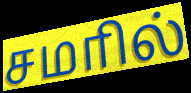
சமரில்